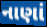
નાણાં